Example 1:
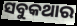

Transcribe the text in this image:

ସବୁକଥାର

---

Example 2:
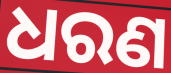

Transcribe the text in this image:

ଧରଣ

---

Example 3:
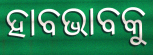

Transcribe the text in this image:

ହାବଭାବକୁ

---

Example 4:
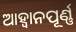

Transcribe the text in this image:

ଆହ୍ବାନପୂର୍ଣ୍ଣ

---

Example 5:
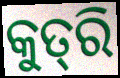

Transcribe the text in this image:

କୁତ୍‌ରି